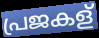
പ്രജകള്